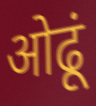
ओढूं